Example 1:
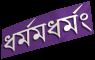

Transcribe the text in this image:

ধর্মমধর্মং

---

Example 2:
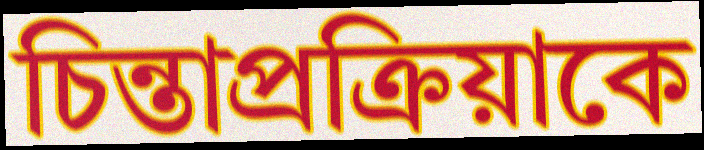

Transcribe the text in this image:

চিন্তাপ্রক্রিয়াকে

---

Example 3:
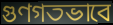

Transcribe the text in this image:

গুণগতভাবে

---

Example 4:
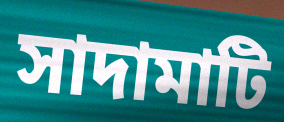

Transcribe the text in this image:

সাদামাটি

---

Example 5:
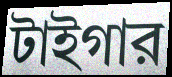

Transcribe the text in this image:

টাইগার